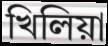
খিলিয়া